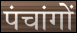
पंचांगों